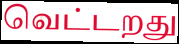
வெட்டறது